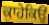
ਕਾਹੇਕਿਉਂ